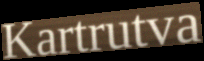
Kartrutva